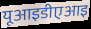
यूआइडीएआइ